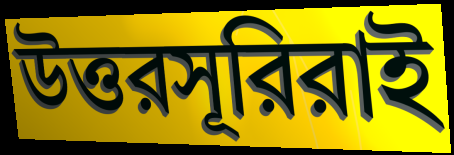
উত্তরসূরিরাই